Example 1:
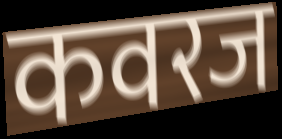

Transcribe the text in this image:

कवरज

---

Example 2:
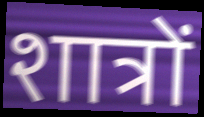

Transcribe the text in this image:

शात्रों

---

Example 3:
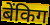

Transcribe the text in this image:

बेंकिग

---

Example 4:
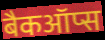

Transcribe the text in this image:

बैकऑप्स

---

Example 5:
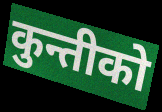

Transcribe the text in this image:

कुन्तीको